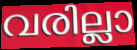
വരില്ലാ